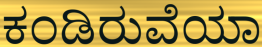
ಕಂಡಿರುವೆಯಾ